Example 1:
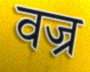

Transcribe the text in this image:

वज्र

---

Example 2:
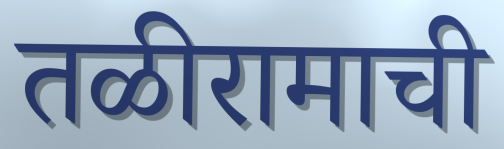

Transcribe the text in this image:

तळीरामाची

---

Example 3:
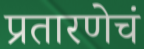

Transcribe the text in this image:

प्रतारणेचं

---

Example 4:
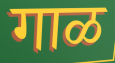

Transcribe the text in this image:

गाळ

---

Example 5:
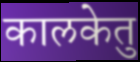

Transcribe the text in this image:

कालकेतु